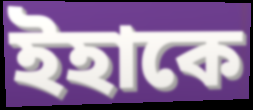
ইহাকে